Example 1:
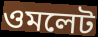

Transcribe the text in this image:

ওমলেট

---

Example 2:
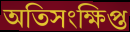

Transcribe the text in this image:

অতিসংক্ষিপ্ত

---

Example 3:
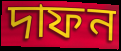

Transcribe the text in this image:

দাফন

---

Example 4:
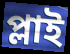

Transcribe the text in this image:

প্লাই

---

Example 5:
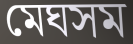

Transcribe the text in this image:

মেঘসম